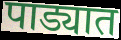
पाड्यात